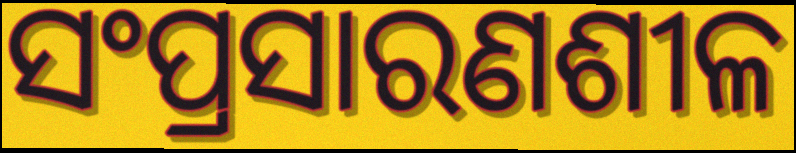
ସଂପ୍ରସାରଣଶୀଳ